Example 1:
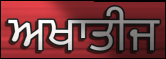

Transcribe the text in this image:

ਅਖਾਤੀਜ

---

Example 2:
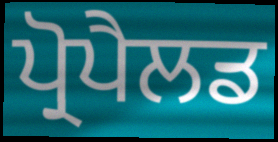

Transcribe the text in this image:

ਪ੍ਰੋਪੈਲਡ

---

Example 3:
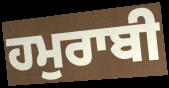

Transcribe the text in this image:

ਹਮੁਰਾਬੀ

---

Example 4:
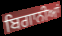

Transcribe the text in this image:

ਬਿਗਾਨੀਆਂ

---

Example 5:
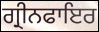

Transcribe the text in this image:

ਗ੍ਰੀਨਫਾਇਰ